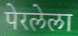
पेरलेला